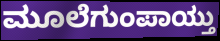
ಮೂಲೆಗುಂಪಾಯ್ತು